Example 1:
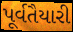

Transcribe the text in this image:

પૂર્વતૈયારી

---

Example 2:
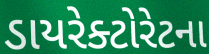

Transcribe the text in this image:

ડાયરેક્ટોરેટના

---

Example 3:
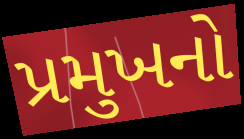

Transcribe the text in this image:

પ્રમુખનો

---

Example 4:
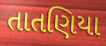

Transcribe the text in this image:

તાતણિયા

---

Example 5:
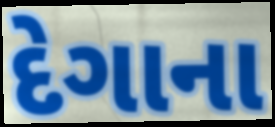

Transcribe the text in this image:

દેગાના